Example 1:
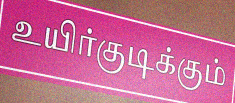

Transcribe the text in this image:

உயிர்குடிக்கும்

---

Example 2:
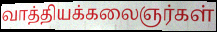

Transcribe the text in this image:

வாத்தியக்கலைஞர்கள்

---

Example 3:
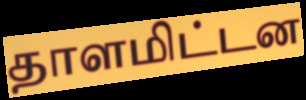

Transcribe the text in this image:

தாளமிட்டன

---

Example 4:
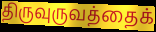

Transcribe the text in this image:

திருவுருவத்தைக்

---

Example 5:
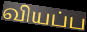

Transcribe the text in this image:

வியப்ப